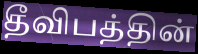
தீவிபத்தின்